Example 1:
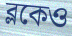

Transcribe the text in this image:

ব্লকেও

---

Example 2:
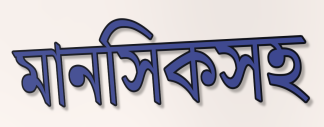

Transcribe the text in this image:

মানসিকসহ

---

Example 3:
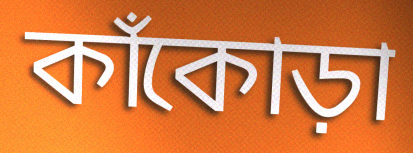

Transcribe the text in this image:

কাঁকোড়া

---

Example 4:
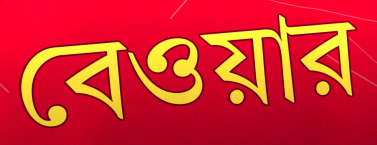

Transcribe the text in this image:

বেওয়ার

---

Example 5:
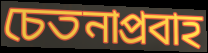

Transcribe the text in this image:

চেতনাপ্রবাহ